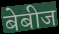
बेबीज